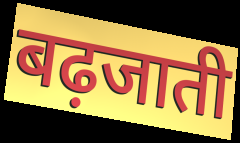
बढ़जाती